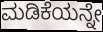
ಮಡಿಕೆಯನ್ನೇ